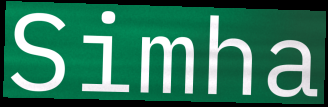
Simha